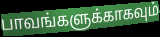
பாவங்களுக்காகவும்